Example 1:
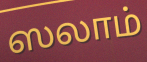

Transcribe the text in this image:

ஸலாம்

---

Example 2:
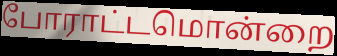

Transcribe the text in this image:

போராட்டமொன்றை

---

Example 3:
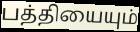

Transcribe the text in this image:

பத்தியையும்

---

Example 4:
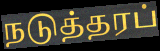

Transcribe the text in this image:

நடுத்தரப்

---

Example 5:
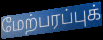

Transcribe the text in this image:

மேற்பரப்புக்